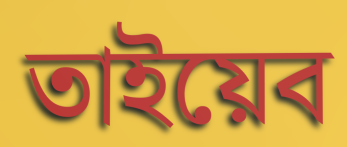
তাইয়েব